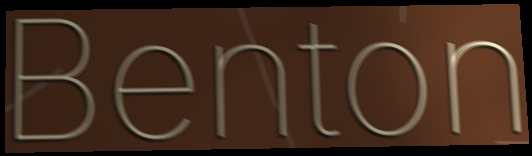
Benton